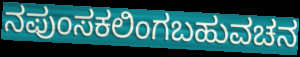
ನಪುಂಸಕಲಿಂಗಬಹುವಚನ